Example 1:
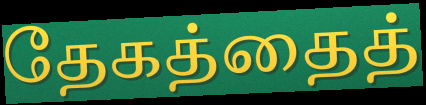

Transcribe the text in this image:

தேகத்தைத்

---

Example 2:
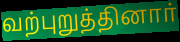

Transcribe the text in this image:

வற்புறுத்தினார்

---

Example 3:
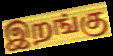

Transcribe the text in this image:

இறங்கு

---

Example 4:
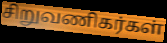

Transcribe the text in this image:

சிறுவணிகர்கள்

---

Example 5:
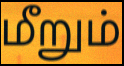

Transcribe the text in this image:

மீறும்